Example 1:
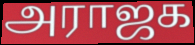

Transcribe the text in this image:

அராஜக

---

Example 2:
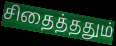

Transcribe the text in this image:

சிதைத்ததும்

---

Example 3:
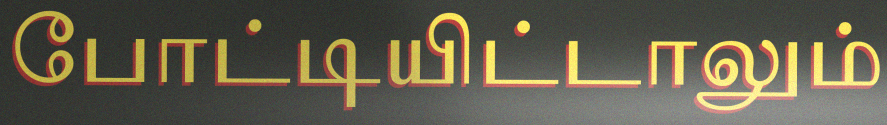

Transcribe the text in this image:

போட்டியிட்டாலும்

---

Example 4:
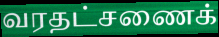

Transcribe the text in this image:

வரதட்சணைக்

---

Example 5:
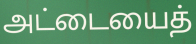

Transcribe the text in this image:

அட்டையைத்